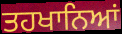
ਤਹਖਾਨਿਆਂ